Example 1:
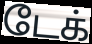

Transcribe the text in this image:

டேக்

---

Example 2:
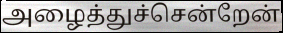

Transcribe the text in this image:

அழைத்துச்சென்றேன்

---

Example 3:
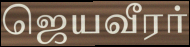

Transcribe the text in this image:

ஜெயவீரர்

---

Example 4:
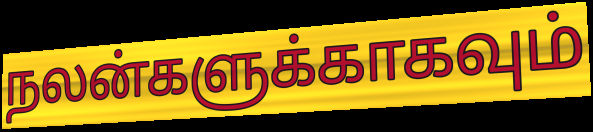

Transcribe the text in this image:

நலன்களுக்காகவும்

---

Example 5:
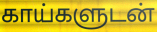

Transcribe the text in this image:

காய்களுடன்